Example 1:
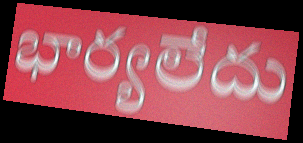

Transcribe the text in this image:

భార్యలేదు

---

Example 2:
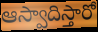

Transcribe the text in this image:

ఆస్వాదిస్తారో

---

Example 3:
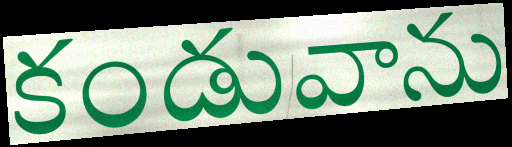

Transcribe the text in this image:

కండువాను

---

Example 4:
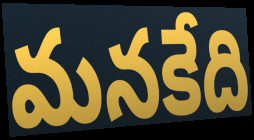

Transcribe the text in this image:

మనకేది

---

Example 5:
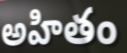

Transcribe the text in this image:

అహితం